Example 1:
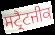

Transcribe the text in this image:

ਸਟ੍ਰੈਟਜੀਕ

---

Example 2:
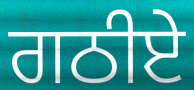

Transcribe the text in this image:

ਗਠੀਏ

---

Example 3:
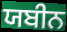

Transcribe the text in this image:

ਯਬੀਨ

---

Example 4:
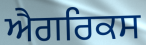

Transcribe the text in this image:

ਐਗਰਿਕਸ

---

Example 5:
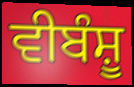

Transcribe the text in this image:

ਵੀਬੰਸ਼ੂ